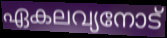
ഏകലവ്യനോട്